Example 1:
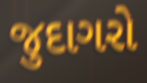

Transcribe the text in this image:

જુદાગરો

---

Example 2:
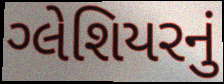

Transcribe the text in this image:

ગ્લેશિયરનું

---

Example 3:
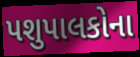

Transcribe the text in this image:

પશુપાલકોના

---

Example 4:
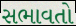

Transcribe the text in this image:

સભાવતો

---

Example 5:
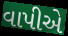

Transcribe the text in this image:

વાપીએ